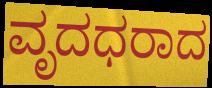
ವೃದಧರಾದ